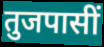
तुजपासीं